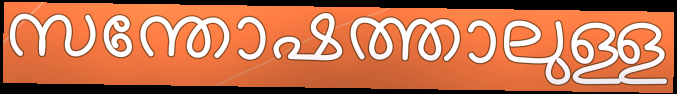
സന്തോഷത്താലുള്ള